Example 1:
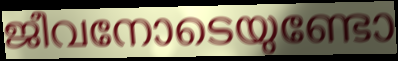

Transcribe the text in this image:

ജീവനോടെയുണ്ടോ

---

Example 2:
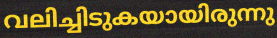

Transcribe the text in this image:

വലിച്ചിടുകയായിരുന്നു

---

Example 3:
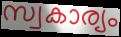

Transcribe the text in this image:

സ്വകാര്യം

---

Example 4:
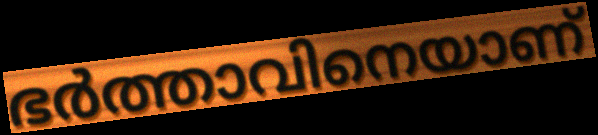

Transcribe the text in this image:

ഭർത്താവിനെയാണ്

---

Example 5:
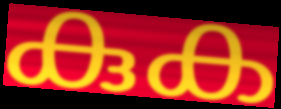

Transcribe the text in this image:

കുക